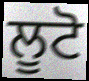
ਲੂਟੋ